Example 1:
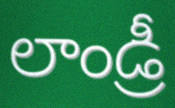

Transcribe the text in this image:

లాండ్రీ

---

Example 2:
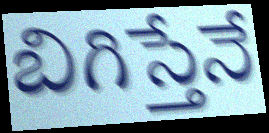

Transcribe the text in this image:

బిగిస్తేనే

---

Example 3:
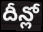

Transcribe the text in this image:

దీన్లో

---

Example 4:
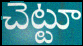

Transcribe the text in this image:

చెట్టూ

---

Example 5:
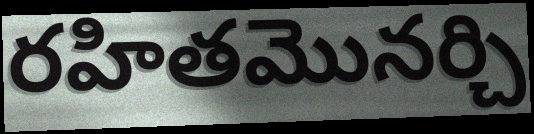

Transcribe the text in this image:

రహితమొనర్చి